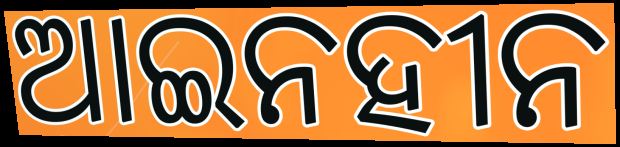
ଆଇନହୀନ